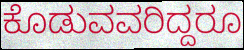
ಕೊಡುವವರಿದ್ದರೂ